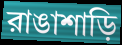
রাঙাশাড়ি